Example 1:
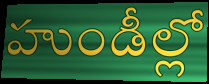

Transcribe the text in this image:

హుండీల్లో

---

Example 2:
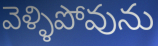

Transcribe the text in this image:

వెళ్ళిపోవును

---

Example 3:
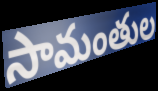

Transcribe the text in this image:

సామంతుల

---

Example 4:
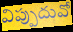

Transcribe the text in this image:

విప్పుదువో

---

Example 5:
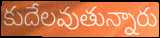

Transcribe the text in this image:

కుదేలవుతున్నారు